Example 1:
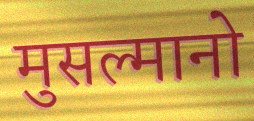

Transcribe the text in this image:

मुसल्मानो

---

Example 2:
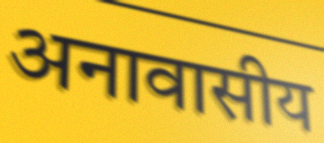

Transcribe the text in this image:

अनावासीय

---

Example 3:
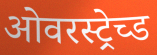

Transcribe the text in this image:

ओवरस्ट्रेच्ड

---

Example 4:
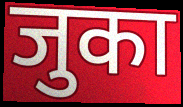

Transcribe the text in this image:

जुका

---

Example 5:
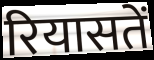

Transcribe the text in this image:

रियासतें